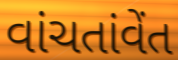
વાંચતાંવેંત